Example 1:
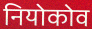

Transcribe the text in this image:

नियोकोव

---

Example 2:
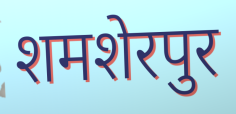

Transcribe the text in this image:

शमशेरपुर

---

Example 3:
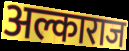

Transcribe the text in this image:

अल्काराज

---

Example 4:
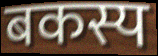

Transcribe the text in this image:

बकस्य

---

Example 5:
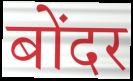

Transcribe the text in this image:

बोंदर